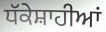
ਧੱਕੇਸ਼ਾਹੀਆਂ